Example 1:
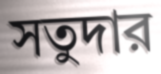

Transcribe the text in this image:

সতুদার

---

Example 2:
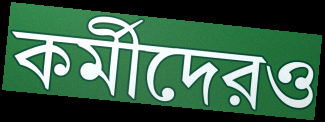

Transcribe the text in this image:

কর্মীদেরও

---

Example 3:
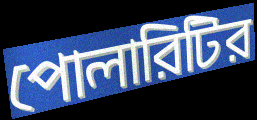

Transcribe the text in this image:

পোলারিটির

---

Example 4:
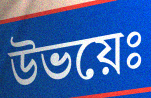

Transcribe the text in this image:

উভয়েঃ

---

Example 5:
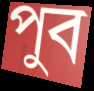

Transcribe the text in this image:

পুব